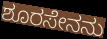
ಶೂರಸೇನನು